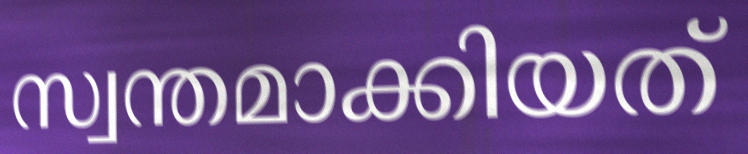
സ്വന്തമാക്കിയത്